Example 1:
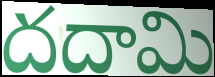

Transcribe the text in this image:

దదామి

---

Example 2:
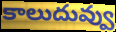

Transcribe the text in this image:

కాలుదువ్వు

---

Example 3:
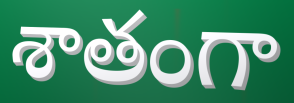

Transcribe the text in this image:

శాతంగా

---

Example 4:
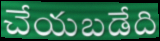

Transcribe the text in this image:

చేయబడేది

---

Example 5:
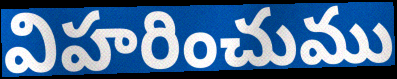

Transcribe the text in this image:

విహరించుము